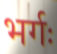
भर्गः